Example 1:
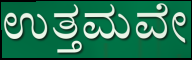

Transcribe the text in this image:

ಉತ್ತಮವೇ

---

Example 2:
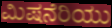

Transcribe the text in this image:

ಮಿಷನೆರಿಯು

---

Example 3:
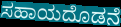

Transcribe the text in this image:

ಸಹಾಯದೊಡನೆ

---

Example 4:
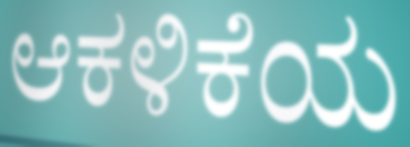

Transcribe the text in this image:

ಆಕಳಿಕೆಯ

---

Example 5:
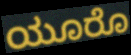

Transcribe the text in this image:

ಯೂರೊ